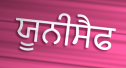
ਯੂਨੀਸੈਫ